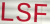
LSF